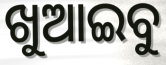
ଖୁଆଇବୁ